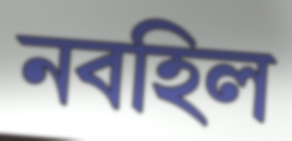
নবহিল